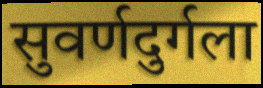
सुवर्णदुर्गला